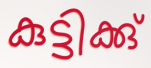
കുട്ടിക്കു്